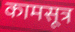
कामसूत्र